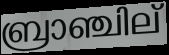
ബ്രാഞ്ചില്